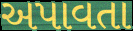
અપાવતા